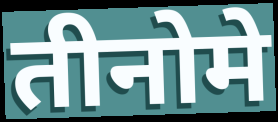
तीनोमे